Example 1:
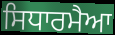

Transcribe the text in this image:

ਸਿਧਾਰਮੈਆ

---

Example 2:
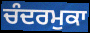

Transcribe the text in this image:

ਚੰਦਰਮੁਕਾ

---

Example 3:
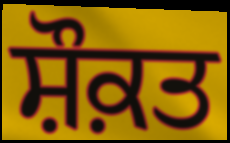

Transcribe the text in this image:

ਸ਼ੌਕ਼ਤ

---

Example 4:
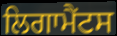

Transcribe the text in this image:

ਲਿਗਾਮੈਂਟਸ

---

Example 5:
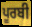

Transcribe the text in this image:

ਪੂਰਬੀ